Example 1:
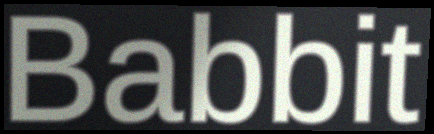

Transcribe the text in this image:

Babbit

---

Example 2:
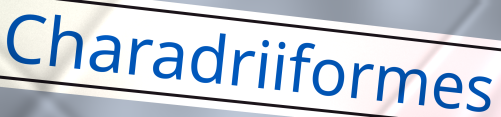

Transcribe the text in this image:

Charadriiformes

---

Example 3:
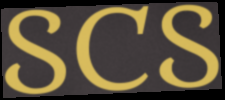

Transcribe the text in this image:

SCS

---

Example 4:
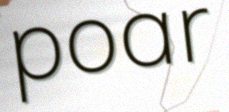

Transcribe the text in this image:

poar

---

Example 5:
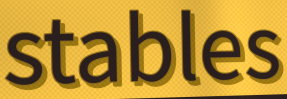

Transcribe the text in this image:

stables